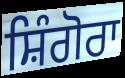
ਸ਼ਿੰਗੋਰਾ